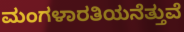
ಮಂಗಳಾರತಿಯನೆತ್ತುವೆ